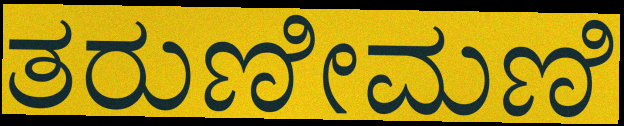
ತರುಣೀಮಣಿ